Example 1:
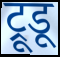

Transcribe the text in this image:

ट्रूडू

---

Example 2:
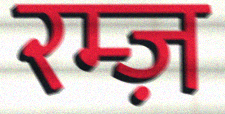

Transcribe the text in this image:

रम्ज़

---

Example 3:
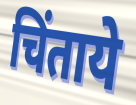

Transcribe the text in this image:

चिंताये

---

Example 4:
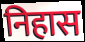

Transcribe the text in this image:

निहास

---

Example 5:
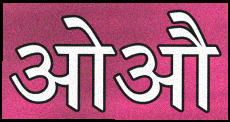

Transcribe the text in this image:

ओऔ